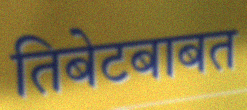
तिबेटबाबत